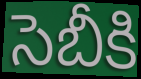
సెబీకి